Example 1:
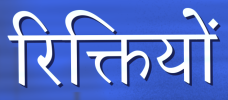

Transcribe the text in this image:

रिक्तियों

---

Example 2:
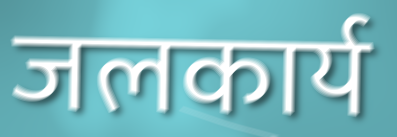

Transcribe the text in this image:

जलकार्य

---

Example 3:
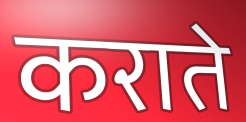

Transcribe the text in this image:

कराते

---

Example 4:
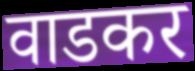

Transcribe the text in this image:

वाडकर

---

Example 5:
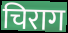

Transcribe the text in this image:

चिराग